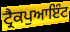
ਟ੍ਰੈਕਪੁਆਇੰਟ